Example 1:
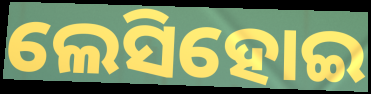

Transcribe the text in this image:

ଲେସିହୋଇ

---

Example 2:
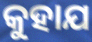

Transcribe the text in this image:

କୁହାଯ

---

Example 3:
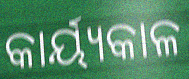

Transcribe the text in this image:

କାର୍ୟ୍ୟକାଳ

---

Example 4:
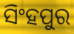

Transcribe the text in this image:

ସିଂହପୁର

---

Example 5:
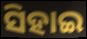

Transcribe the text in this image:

ସିହାଇ